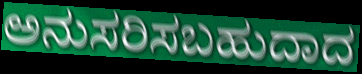
ಅನುಸರಿಸಬಹುದಾದ